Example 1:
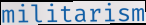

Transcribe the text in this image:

militarism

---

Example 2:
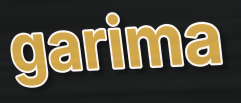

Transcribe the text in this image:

garima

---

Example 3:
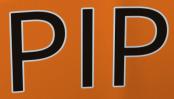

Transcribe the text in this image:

PIP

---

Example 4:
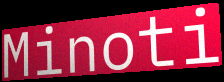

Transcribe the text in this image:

Minoti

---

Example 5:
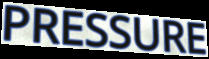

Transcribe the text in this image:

PRESSURE